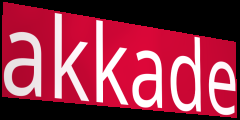
akkade